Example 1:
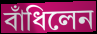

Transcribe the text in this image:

বাঁধিলেন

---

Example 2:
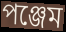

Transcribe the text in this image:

পঞ্জেম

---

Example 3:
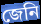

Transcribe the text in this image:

জেনি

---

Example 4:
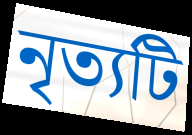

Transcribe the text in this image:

নৃত্যটি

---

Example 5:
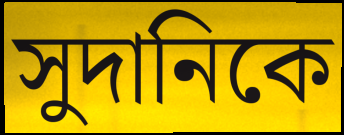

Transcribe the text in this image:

সুদানিকে